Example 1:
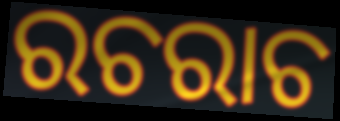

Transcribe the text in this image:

ରଚରାଚ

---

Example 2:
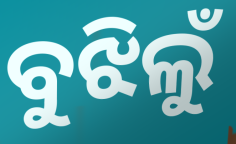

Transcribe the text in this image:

ବୁଝିଲୁଁ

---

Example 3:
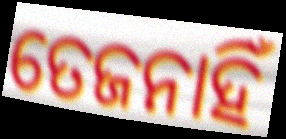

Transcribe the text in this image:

ତେଜନାହିଁ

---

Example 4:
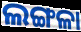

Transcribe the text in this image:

ଲଙ୍ଗଳା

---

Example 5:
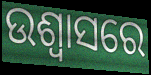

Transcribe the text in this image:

ଉଶ୍ଵାସରେ